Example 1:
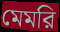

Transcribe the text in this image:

মেমরি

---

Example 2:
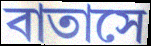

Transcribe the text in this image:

বাতাসে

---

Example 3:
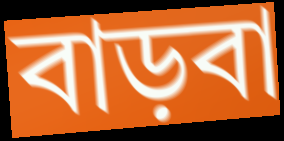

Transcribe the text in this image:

বাড়বা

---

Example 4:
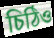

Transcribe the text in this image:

চিঠিও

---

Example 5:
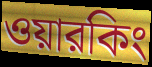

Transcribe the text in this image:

ওয়ারকিং